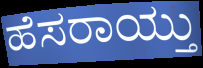
ಹೆಸರಾಯ್ತು